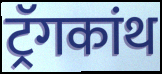
ट्रॅगकांथ